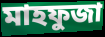
মাহফুজা